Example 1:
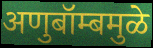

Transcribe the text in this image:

अणुबॉम्बमुळे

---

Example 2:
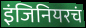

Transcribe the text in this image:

इंजिनियरचं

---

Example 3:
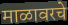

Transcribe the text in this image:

माळावरचे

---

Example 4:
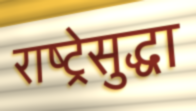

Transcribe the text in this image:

राष्ट्रेसुद्धा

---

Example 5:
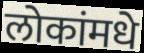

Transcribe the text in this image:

लोकांमधे